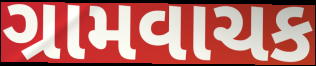
ગ્રામવાચક